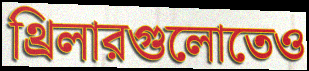
থ্রিলারগুলোতেও